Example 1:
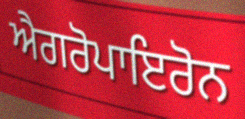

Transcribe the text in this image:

ਐਗਰੋਪਾਇਰੋਨ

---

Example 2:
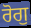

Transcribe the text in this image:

ਰੋਗੁ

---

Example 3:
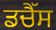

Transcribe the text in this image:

ਡਚੈੱਸ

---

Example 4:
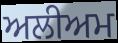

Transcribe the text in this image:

ਅਲੀਅਮ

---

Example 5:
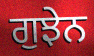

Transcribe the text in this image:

ਗੁਝੇਨ